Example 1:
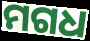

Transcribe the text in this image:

ମଗଧ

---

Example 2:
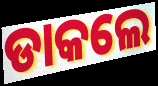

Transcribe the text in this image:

ଡାକଲେ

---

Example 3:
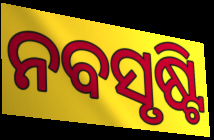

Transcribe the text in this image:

ନବସୃଷ୍ଟି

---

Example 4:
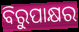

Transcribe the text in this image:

ବିରୁପାକ୍ଷର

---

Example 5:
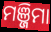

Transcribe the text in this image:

ମଞ୍ଜିମା